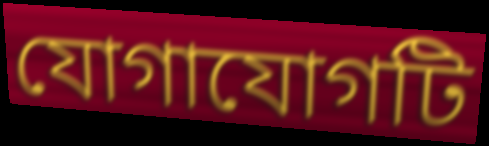
যোগাযোগটি